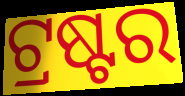
ଟ୍ରଷ୍ଟର